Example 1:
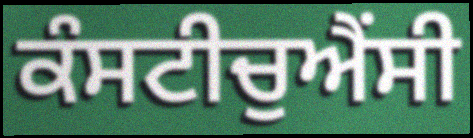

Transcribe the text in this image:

ਕੰਸਟੀਚੁਐਂਸੀ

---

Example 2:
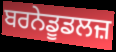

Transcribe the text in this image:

ਬਰਨੇਡੂਡਲਜ਼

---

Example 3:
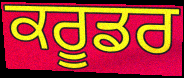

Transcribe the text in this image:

ਕਰੂਡਰ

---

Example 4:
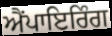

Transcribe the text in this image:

ਐਂਪਾਇਰਿੰਗ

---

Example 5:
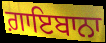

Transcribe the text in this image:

ਗ਼ਾਇਬਾਨਾ